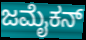
ಜಮೈಕನ್